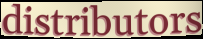
distributors